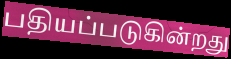
பதியப்படுகின்றது